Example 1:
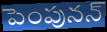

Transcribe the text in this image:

పెంపునన్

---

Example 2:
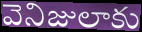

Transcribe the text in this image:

వెనిజులాకు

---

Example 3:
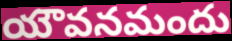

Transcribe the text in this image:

యౌవనమందు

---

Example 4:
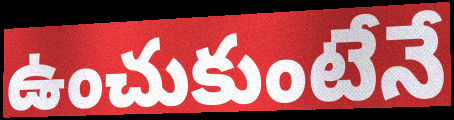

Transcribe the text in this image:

ఉంచుకుంటేనే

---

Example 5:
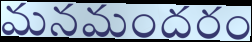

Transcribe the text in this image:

మనమందరం